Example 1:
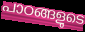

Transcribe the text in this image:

പാഠങ്ങളുടെ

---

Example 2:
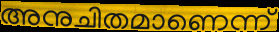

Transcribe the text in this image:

അനുചിതമാണെന്ന്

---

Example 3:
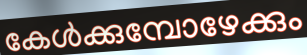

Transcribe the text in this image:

കേൾക്കുമ്പോഴേക്കും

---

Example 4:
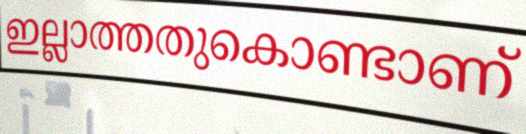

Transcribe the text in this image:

ഇല്ലാത്തതുകൊണ്ടാണ്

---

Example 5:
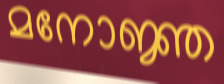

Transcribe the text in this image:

മനോജ്ഞ